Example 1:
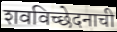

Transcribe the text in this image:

शवविच्छेदनाची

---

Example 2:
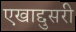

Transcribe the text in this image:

एखाद्दुसरी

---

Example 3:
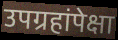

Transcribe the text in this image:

उपग्रहांपेक्षा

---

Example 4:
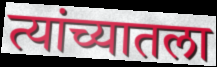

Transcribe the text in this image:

त्यांच्यातला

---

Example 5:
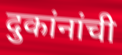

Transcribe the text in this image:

दुकांनांची